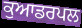
ਕੁਆਡਰਪਲ